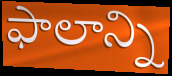
ఫాలాన్ని